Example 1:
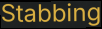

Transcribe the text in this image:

Stabbing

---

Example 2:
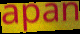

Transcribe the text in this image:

apan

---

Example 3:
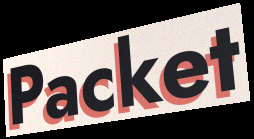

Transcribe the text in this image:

Packet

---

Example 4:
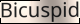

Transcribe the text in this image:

Bicuspid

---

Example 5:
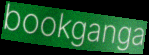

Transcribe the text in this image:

bookganga